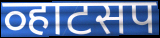
व्हाटसप